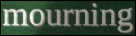
mourning